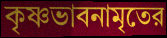
কৃষ্ণভাবনামৃতের